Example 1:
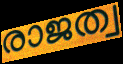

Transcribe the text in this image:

രാജത്വ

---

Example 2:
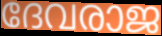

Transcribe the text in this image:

ദേവരാജ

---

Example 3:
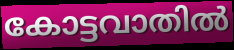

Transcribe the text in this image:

കോട്ടവാതിൽ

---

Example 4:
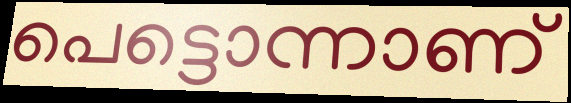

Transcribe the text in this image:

പെട്ടൊന്നാണ്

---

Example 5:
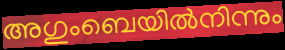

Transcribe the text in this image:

അഗുംബെയിൽനിന്നും